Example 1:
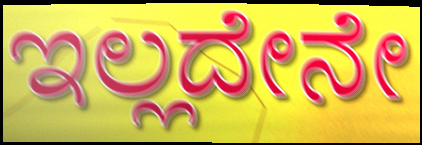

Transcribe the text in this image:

ಇಲ್ಲದೇನೇ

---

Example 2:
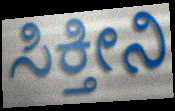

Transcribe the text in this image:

ಸಿಕ್ತೀನಿ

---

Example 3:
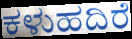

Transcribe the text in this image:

ಕಳುಹದಿರೆ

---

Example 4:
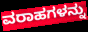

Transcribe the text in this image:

ವರಾಹಗಳನ್ನು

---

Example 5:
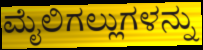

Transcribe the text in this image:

ಮೈಲಿಗಲ್ಲುಗಳನ್ನು